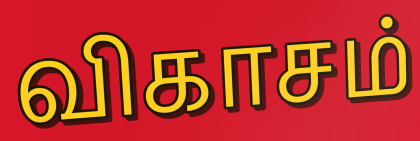
விகாசம்